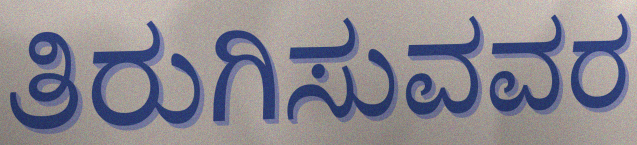
ತಿರುಗಿಸುವವರ